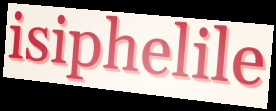
isiphelile